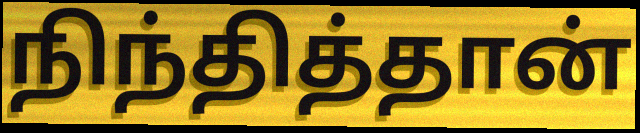
நிந்தித்தான்